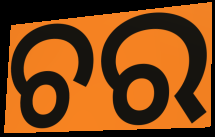
ଚର